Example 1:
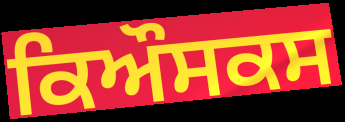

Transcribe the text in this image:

ਕਿਔਸਕਸ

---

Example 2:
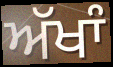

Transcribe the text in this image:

ਅੱਖਾੰ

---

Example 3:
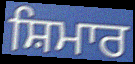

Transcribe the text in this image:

ਸ਼ਿਮਾਰ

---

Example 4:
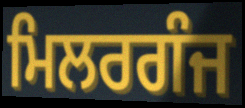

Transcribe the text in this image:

ਮਿਲਰਗੰਜ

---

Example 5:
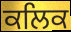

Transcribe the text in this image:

ਕਲਿਕ